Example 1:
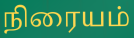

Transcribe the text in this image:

நிரையம்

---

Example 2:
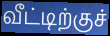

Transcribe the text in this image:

வீட்டிற்குச்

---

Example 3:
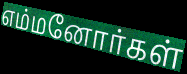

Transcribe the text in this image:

எம்மனோர்கள்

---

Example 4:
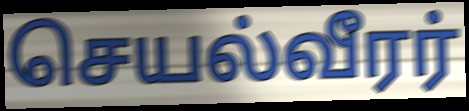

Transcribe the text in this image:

செயல்வீரர்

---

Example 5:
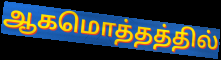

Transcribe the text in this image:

ஆகமொத்தத்தில்